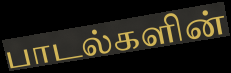
பாடல்களின்